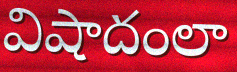
విషాదంలా